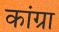
कांग्रा